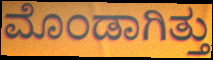
ಮೊಂಡಾಗಿತ್ತು